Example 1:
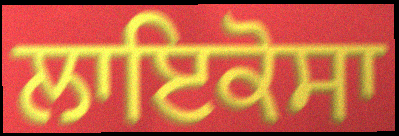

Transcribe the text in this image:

ਲਾਇਕੋਸਾ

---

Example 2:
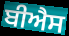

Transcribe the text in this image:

ਬੀਐਸ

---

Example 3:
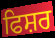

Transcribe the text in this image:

ਫਿਸ਼ਰ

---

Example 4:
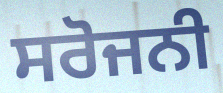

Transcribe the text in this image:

ਸਰੋਜਨੀ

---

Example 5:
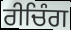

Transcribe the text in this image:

ਰੀਚਿੰਗ